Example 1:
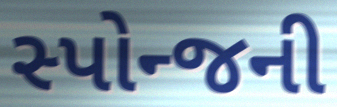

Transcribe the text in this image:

સ્પોન્જની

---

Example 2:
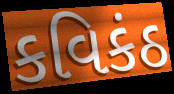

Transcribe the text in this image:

કવિકંઠ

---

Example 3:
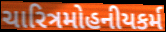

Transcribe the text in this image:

ચારિત્રમોહનીયકર્મ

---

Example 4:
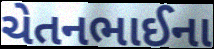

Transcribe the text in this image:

ચેતનભાઈના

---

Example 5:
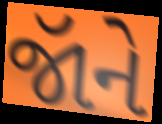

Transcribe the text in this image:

જૉને